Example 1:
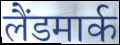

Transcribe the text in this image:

लैंडमार्क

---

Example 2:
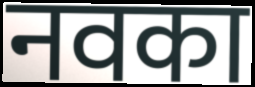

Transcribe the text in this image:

नवका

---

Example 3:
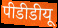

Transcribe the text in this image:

पीडीडीयू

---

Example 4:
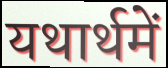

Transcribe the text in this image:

यथार्थमें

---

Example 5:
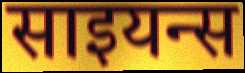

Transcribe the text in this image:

साइयन्स